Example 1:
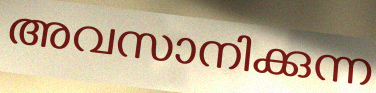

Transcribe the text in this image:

അവസാനിക്കുന്ന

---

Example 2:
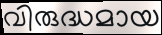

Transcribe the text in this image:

വിരുദ്ധമായ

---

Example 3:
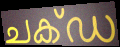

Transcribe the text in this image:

ചക്ഡ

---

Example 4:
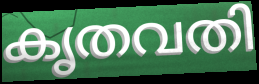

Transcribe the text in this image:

കൃതവതി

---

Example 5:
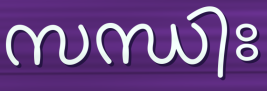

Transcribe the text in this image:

സന്ധിഃ